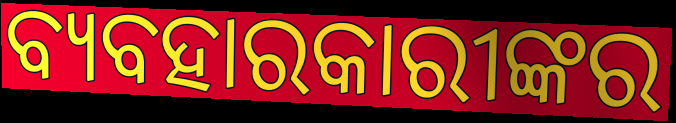
ବ୍ୟବହାରକାରୀଙ୍କର